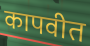
कापवीत